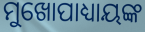
ମୁଖୋପାଧ୍ୟାୟଙ୍କ